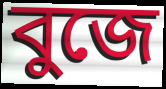
বুজে